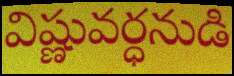
విష్ణువర్ధనుడి